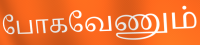
போகவேணும்